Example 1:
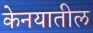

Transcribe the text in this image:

केनयातील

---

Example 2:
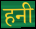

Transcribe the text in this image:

हनी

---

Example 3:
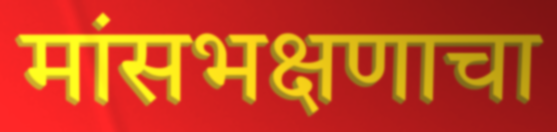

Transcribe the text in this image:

मांसभक्षणाचा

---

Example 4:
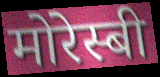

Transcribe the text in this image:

मोरेस्बी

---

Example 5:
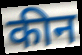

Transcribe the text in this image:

कीन